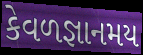
કેવળજ્ઞાનમય